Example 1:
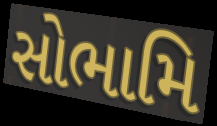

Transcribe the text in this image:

સોભામિ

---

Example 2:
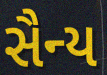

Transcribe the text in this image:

સૈન્ય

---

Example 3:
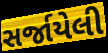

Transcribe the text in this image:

સર્જાયેલી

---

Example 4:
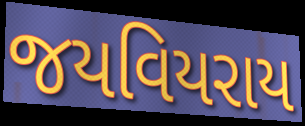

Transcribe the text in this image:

જયવિયરાય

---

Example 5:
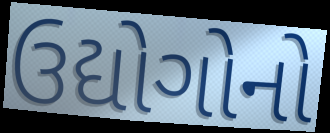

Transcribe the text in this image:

ઉદ્યોગોનો